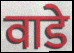
वाडे